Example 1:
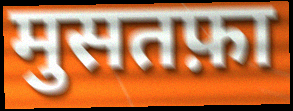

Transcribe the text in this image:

मुसतफ़ा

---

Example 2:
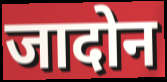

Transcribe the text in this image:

जादोन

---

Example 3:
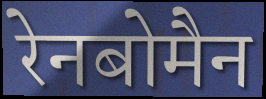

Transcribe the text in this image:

रेनबोमैन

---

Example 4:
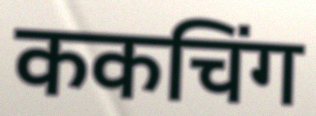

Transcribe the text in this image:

ककचिंग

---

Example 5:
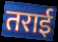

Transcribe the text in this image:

तराई